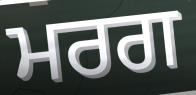
ਮਰਗ